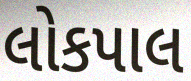
લોકપાલ